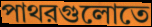
পাথরগুলোতে